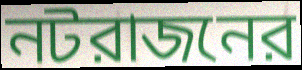
নটরাজনের